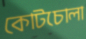
কোটচোলা